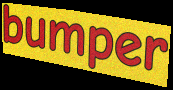
bumper